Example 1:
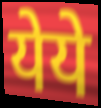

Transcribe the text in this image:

येये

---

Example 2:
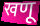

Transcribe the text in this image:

खणू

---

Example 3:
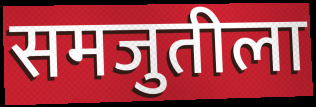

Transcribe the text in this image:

समजुतीला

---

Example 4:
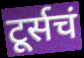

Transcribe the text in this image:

टूर्सचं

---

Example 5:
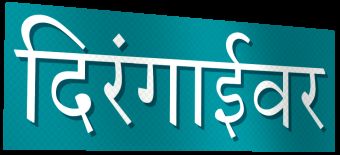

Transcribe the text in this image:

दिरंगाईवर